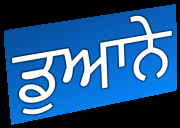
ਡੁਆਨੇ